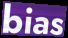
bias